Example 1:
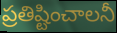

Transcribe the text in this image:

ప్రతిష్టించాలనీ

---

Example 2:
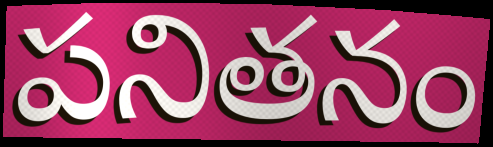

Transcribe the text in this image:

పనితనం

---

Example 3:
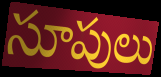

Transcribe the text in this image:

సూపులు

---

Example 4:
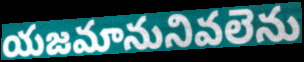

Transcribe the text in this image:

యజమానునివలెను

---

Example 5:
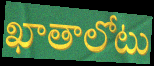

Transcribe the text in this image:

ఖాతాలోటు